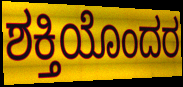
ಶಕ್ತಿಯೊಂದರ